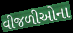
વીજળીઓના